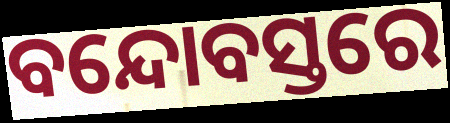
ବନ୍ଦୋବସ୍ତରେ